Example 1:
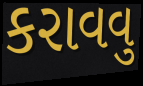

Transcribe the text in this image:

કરાવવુ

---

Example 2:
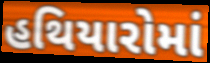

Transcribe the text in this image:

હથિયારોમાં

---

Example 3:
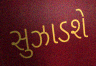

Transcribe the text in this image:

સુઝાડશે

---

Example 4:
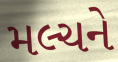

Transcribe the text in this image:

મલ્ચને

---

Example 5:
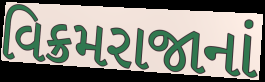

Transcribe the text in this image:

વિક્રમરાજાનાં